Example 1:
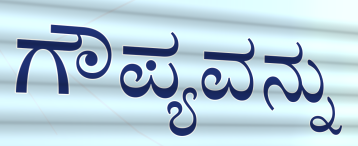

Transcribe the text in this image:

ಗೌಪ್ಯವನ್ನು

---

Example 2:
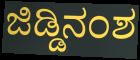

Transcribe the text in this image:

ಜಿಡ್ಡಿನಂಶ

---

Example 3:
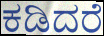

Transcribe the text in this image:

ಕಡಿದರೆ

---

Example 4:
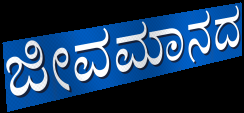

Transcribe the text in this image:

ಜೀವಮಾನದ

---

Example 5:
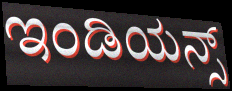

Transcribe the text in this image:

ಇಂಡಿಯನ್ಸ್